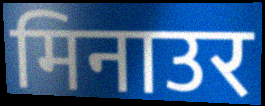
मिनाउर